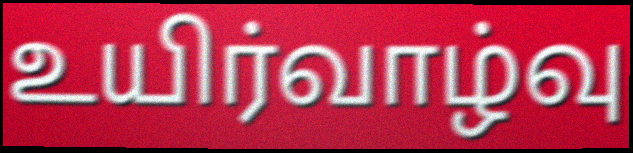
உயிர்வாழ்வு